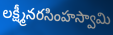
లక్ష్మీనరసింహస్వామి